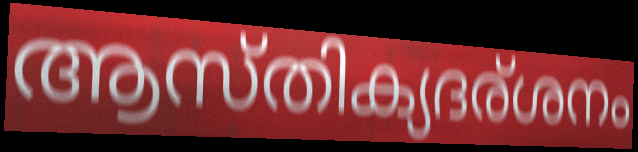
ആസ്തിക്യദര്ശനം